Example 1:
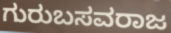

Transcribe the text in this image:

ಗುರುಬಸವರಾಜ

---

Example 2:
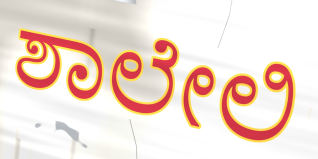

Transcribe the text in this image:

ಶಾಲೇಲಿ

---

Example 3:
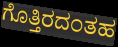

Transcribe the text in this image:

ಗೊತ್ತಿರದಂತಹ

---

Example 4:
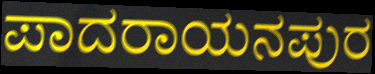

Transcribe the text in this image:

ಪಾದರಾಯನಪುರ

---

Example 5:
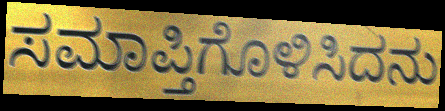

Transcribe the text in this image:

ಸಮಾಪ್ತಿಗೊಳಿಸಿದನು